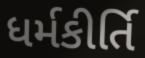
ધર્મકીર્તિ